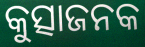
କୁତ୍ସାଜନକ